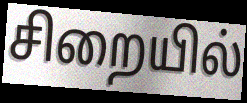
சிறையில்